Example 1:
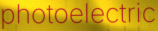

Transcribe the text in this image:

photoelectric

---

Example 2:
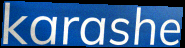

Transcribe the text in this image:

karashe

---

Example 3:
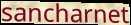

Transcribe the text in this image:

sancharnet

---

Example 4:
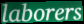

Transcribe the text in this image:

laborers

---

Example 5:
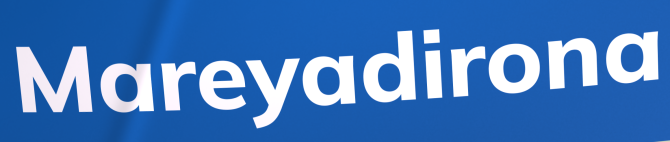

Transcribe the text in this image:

Mareyadirona